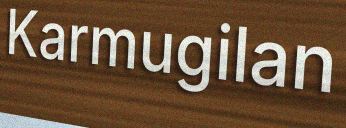
Karmugilan